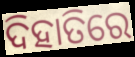
ଦିହାତିରେ